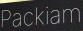
Packiam